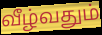
வீழ்வதும்